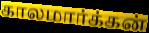
காலமார்க்கன்